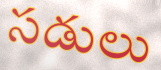
సడులు